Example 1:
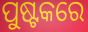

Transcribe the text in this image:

ପୁଷ୍ଟକରେ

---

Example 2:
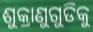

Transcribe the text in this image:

ଶୁକ୍ରାଣୁଗୁଡିକୁ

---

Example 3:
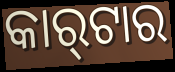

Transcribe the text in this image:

କାର୍‍ଟାର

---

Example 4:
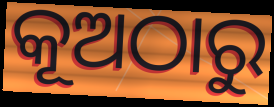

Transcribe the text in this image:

କୂଅଠାରୁ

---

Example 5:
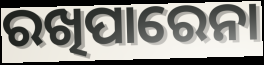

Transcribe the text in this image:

ରଖିପାରେନା